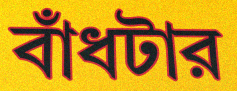
বাঁধটার